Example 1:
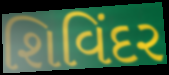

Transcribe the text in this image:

શિવિંદર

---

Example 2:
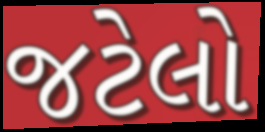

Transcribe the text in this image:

જટેલો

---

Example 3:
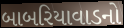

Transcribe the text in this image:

બાબરિયાવાડનો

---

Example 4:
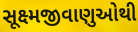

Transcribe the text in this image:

સૂક્ષ્મજીવાણુઓથી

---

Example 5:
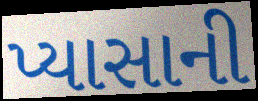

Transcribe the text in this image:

પ્યાસાની